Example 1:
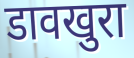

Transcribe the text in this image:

डावखुरा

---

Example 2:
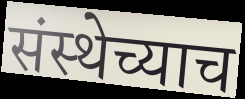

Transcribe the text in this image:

संस्थेच्याच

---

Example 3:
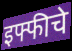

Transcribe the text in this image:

इफ्फीचे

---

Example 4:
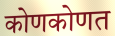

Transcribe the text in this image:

कोणकोणत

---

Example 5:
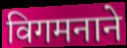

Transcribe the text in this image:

विगमनाने